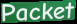
Packet